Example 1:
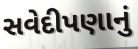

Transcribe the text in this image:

સવેદીપણાનું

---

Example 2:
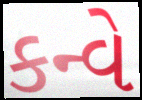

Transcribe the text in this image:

કન્વે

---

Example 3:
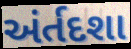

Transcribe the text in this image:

અંર્તદશા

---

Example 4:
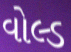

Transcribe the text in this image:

વોલ્ડ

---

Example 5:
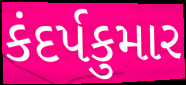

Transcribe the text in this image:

કંદર્પકુમાર